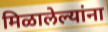
मिळालेल्यांना